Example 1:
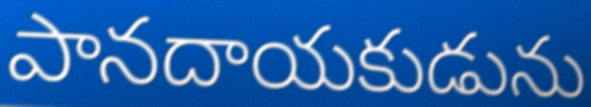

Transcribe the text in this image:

పానదాయకుడును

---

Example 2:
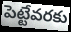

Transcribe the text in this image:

పెట్టేవరకు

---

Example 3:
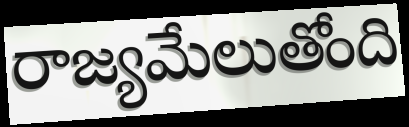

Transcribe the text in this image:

రాజ్యమేలుతోంది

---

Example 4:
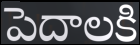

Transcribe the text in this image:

పెదాలకి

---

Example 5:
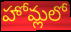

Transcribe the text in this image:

హోమ్లలో